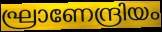
ഘ്രാണേന്ദ്രിയം